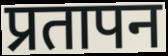
प्रतापन